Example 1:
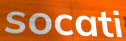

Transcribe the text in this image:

socati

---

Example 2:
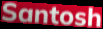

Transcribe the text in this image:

Santosh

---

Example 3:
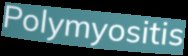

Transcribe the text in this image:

Polymyositis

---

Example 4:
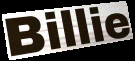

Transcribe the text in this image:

Billie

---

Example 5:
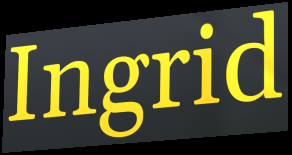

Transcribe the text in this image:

Ingrid